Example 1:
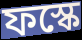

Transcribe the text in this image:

ফস্কে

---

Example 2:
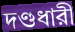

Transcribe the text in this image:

দণ্ডধারী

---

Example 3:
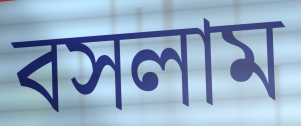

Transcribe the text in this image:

বসলাম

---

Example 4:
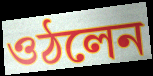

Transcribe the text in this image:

ওঠলেন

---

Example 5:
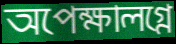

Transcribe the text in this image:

অপেক্ষালগ্নে